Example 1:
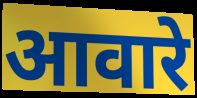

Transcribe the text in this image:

आवारे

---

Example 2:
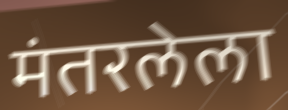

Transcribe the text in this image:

मंतरलेला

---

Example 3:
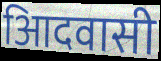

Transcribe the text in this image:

आिदवासी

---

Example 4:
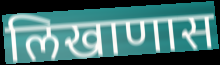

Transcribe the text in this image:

लिखाणास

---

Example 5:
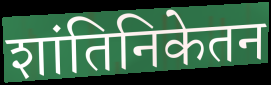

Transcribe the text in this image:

शांतिनिकेतन